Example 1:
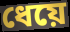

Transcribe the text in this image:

ধেয়ে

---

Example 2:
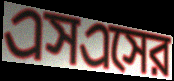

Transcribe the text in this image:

এসএসের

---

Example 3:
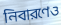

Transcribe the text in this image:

নিবারণেও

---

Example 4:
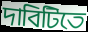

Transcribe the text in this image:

দাবিটিতে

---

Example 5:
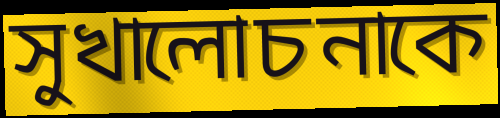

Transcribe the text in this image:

সুখালোচনাকে